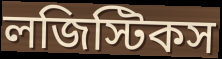
লজিস্টিকস